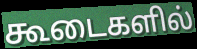
கூடைகளில்